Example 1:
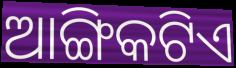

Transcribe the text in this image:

ଆଙ୍ଗିକଟିଏ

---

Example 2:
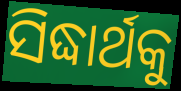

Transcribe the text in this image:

ସିଦ୍ଧାର୍ଥକୁ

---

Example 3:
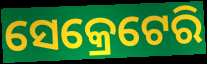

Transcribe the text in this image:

ସେକ୍ରେଟେରି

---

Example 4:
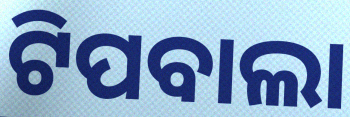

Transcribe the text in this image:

ଟିପବାଲା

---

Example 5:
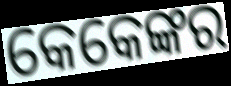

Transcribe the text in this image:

କେକେଙ୍କର